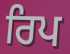
ਰਿਪ